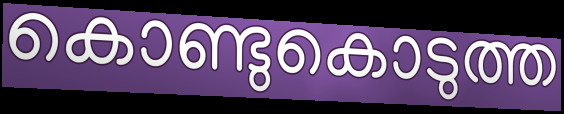
കൊണ്ടുകൊടുത്ത